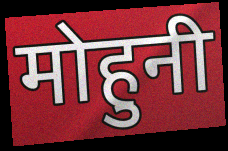
मोहुनी